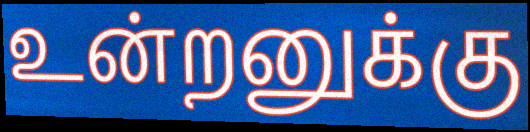
உன்றனுக்கு